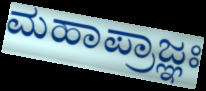
ಮಹಾಪ್ರಾಜ್ಞಃ